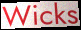
Wicks